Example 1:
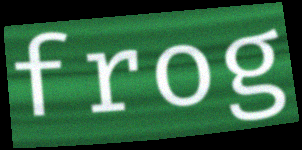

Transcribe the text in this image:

frog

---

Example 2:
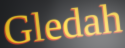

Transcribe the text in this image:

Gledah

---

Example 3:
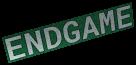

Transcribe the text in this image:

ENDGAME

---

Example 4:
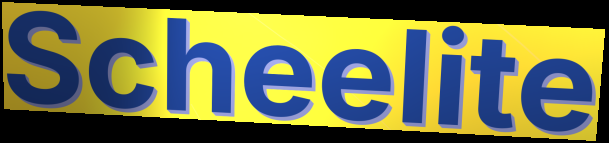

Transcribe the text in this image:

Scheelite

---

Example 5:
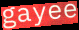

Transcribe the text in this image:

gayee